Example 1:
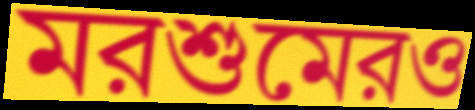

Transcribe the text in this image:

মরশুমেরও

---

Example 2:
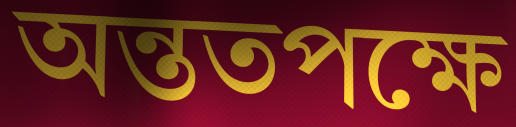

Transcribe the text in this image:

অন্ততপক্ষে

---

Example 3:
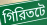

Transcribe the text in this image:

গিরিতটে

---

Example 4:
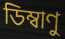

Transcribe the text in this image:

ডিম্বাণু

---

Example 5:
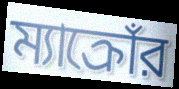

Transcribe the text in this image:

ম্যাক্রোঁর